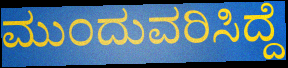
ಮುಂದುವರಿಸಿದ್ದೆ